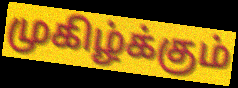
முகிழ்க்கும்